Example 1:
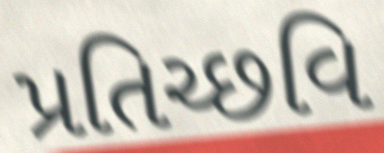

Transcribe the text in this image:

પ્રતિચ્છવિ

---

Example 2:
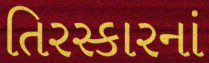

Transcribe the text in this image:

તિરસ્કારનાં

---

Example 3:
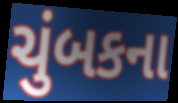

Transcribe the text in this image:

ચુંબકના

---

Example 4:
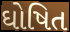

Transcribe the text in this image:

ઘોષિત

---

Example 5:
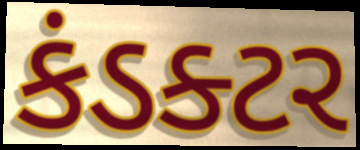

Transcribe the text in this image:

કંડક્ટર